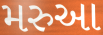
મરુઆ